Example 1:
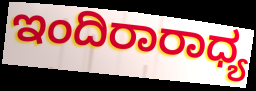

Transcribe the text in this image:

ಇಂದಿರಾರಾಧ್ಯ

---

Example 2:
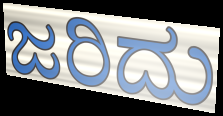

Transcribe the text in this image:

ಜರಿದು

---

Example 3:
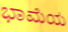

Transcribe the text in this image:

ಭಾಮೆಯ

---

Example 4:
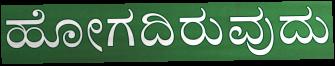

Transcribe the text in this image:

ಹೋಗದಿರುವುದು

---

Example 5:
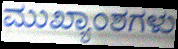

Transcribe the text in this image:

ಮುಖ್ಯಾಂಶಗಳು